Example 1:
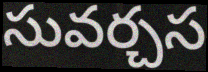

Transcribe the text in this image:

సువర్చస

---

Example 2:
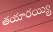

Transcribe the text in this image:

తయారయ్యి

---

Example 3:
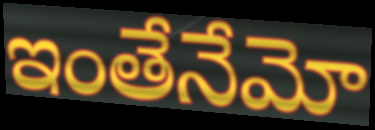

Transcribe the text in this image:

ఇంతేనేమో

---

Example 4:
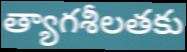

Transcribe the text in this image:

త్యాగశీలతకు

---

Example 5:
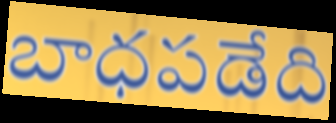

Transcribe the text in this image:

బాధపడేది